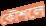
কৌশলে